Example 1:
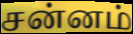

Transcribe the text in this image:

சன்னம்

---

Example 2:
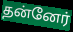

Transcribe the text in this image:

தன்னேர்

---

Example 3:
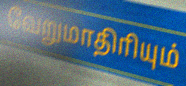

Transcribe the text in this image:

வேறுமாதிரியும்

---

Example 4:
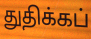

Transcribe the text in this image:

துதிக்கப்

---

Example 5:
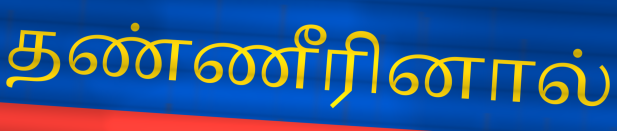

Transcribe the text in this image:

தண்ணீரினால்